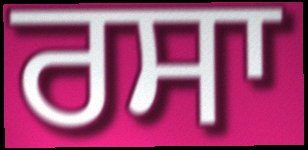
ਰਸਾ